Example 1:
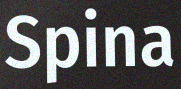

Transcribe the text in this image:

Spina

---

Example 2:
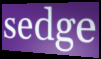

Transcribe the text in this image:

sedge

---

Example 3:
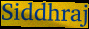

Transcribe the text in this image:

Siddhraj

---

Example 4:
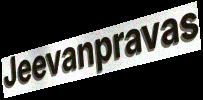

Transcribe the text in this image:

Jeevanpravas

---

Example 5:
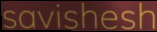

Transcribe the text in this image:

savishesh